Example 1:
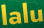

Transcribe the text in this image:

lalu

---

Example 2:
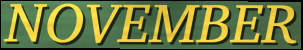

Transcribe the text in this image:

NOVEMBER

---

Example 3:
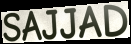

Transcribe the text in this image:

SAJJAD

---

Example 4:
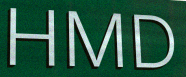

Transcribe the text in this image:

HMD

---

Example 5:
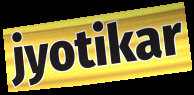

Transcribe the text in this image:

jyotikar